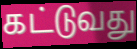
கட்டுவது